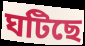
ঘটিছে